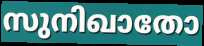
സുനിഖാതോ